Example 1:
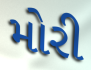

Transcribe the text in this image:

મોરી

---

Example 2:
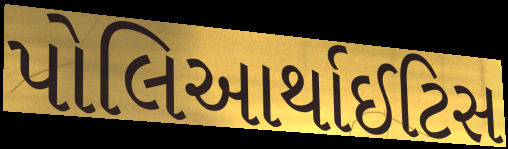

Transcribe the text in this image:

પોલિઆર્થાઈટિસ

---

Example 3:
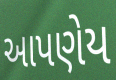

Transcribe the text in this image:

આપણેય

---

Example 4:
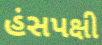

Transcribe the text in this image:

હંસપક્ષી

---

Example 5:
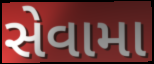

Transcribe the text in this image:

સેવામા